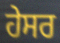
ਹੇਸਰ